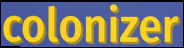
colonizer